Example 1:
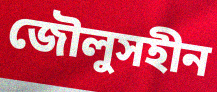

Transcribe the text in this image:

জৌলুসহীন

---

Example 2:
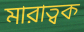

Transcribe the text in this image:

মারাত্বক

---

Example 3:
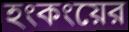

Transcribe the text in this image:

হংকংয়ের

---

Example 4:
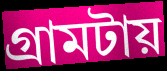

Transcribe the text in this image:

গ্রামটায়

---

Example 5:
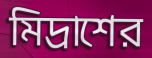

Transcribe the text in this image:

মিদ্রাশের